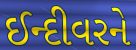
ઈન્દીવરને